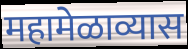
महामेळाव्यास